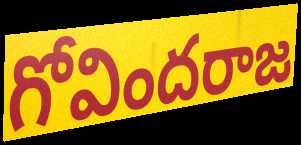
గోవిందరాజ